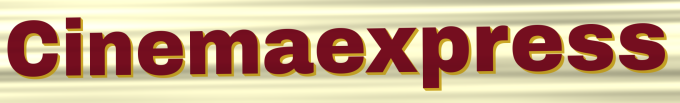
Cinemaexpress